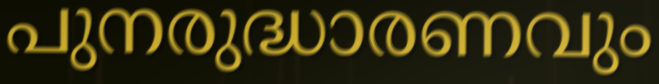
പുനരുദ്ധാരണവും